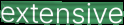
extensive